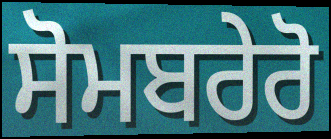
ਸੋਮਬਰੇਰੋ